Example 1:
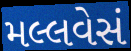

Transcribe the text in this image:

મલ્લવેસં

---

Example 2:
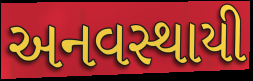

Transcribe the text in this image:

અનવસ્થાયી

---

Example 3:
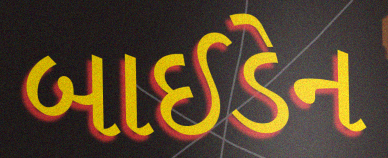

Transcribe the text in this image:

બાઈડેન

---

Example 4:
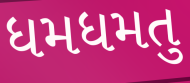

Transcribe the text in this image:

ધમધમતુ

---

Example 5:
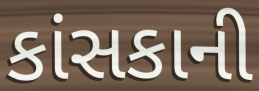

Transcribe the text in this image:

કાંસકાની